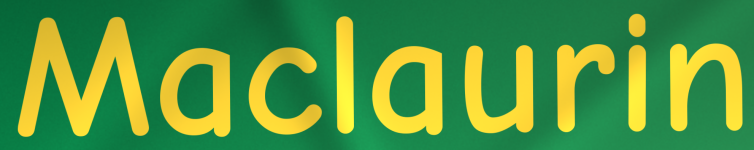
Maclaurin